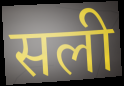
सली